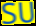
SU